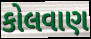
કોલવાણ